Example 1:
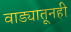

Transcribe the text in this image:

वाड्यातूनही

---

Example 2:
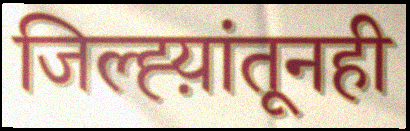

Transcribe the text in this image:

जिल्ह्य़ांतूनही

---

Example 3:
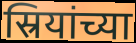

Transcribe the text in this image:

स्रियांच्या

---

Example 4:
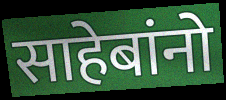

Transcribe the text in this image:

साहेबांनो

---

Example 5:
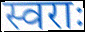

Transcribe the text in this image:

स्वराः